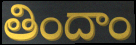
తిందాం